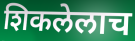
शिकलेलाच